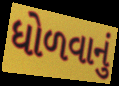
ધોળવાનું